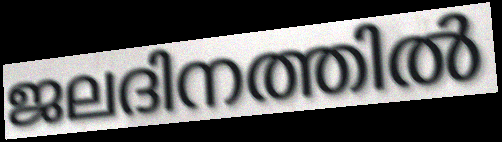
ജലദിനത്തിൽ